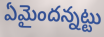
ఏమైందన్నట్టు